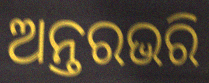
ଅନ୍ତରଭରି